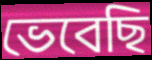
ভেবেছি